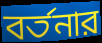
বর্তনার